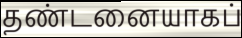
தண்டனையாகப்